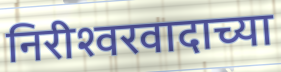
निरीश्वरवादाच्या